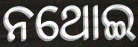
ନଥୋଇ